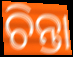
ଚିନ୍ତା